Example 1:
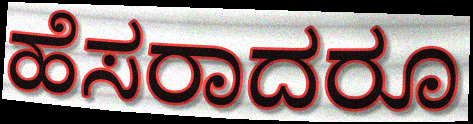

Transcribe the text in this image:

ಹೆಸರಾದರೂ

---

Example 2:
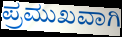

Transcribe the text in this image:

ಪ್ರಮುಖವಾಗಿ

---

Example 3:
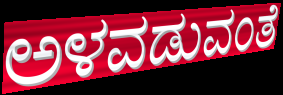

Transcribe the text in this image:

ಅಳವಡುವಂತೆ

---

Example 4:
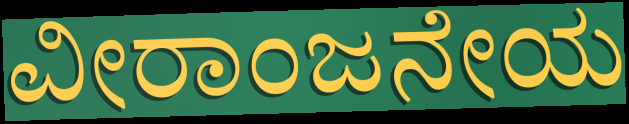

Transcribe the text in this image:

ವೀರಾಂಜನೇಯ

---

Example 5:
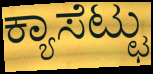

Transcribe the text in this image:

ಕ್ಯಾಸೆಟ್ಟು